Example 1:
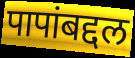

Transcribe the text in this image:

पापांबद्दल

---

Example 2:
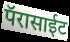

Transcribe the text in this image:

पॅरासाईट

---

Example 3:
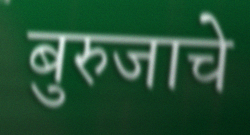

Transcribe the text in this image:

बुरुजाचे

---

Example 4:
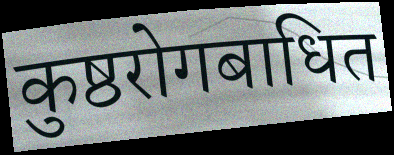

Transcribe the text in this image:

कुष्ठरोगबाधित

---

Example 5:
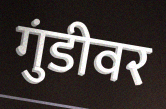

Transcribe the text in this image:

गुंडीवर